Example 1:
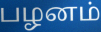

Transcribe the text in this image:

பழனம்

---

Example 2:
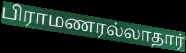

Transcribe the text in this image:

பிராமணரல்லாதார்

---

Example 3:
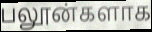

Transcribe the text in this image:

பலூன்களாக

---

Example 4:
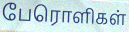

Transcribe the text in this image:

பேரொளிகள்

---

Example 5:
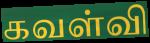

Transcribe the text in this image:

கவள்வி